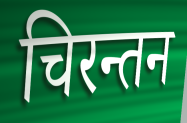
चिरन्तन